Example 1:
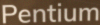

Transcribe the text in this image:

Pentium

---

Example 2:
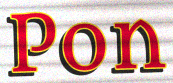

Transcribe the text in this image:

Pon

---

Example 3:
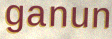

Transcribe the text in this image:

ganun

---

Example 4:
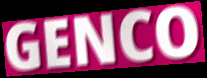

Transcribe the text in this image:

GENCO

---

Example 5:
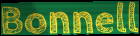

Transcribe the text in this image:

Bonnell